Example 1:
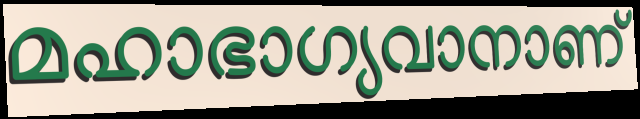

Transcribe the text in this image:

മഹാഭാഗ്യവാനാണ്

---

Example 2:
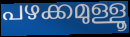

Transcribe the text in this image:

പഴക്കമുള്ളൂ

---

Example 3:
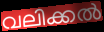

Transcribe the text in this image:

വലിക്കൽ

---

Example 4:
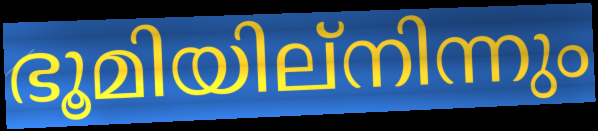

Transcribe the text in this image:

ഭൂമിയില്നിന്നും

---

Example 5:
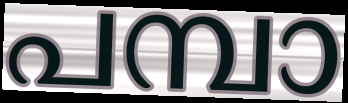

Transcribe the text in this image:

പമ്പാ